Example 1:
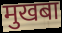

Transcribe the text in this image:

मुखबा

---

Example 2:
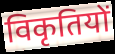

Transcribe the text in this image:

विकृतियों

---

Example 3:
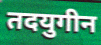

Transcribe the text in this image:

तदयुगीन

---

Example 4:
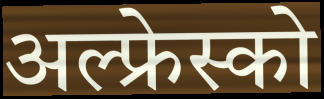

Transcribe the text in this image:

अल्फ्रेस्को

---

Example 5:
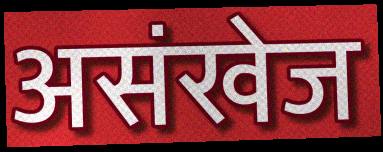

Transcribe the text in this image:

असंखेज